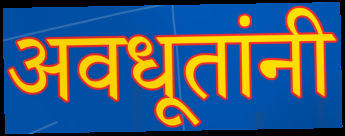
अवधूतांनी